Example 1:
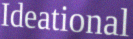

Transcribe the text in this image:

Ideational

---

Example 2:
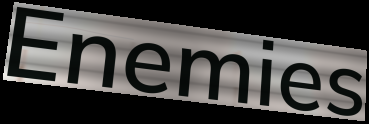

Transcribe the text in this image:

Enemies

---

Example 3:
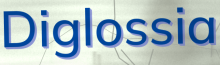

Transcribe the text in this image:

Diglossia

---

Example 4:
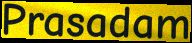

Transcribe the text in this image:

Prasadam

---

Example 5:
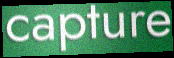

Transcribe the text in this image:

capture